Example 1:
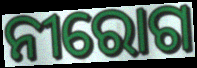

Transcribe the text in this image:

ନୀରୋଗ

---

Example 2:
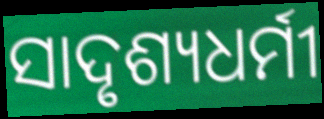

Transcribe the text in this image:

ସାଦୃଶ୍ୟଧର୍ମୀ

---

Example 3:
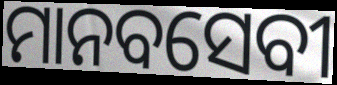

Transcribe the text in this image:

ମାନବସେବୀ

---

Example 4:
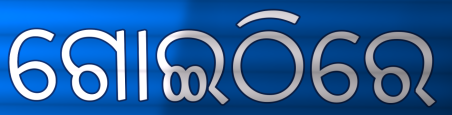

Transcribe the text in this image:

ଗୋଇଠିରେ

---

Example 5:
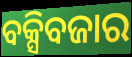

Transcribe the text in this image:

ବକ୍ସିବଜାର